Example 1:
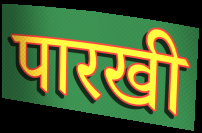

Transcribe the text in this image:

पारखी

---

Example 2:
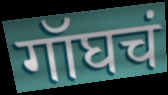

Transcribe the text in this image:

गॉघचं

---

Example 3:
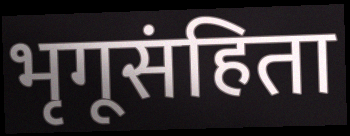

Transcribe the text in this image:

भृगूसंहिता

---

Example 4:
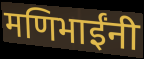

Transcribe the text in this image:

मणिभाईंनी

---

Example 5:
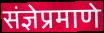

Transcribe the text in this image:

संज्ञेप्रमाणे